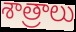
శాత్రాలు